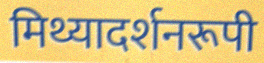
मिथ्यादर्शनरूपी